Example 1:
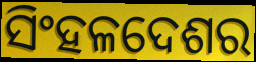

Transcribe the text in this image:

ସିଂହଳଦେଶର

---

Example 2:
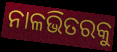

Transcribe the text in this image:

ନାଳଭିତରକୁ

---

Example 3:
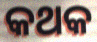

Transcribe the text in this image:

କଥକ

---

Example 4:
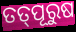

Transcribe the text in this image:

ତତ୍‌ପୂରୁଷ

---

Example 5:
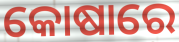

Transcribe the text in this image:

କୋଷାରେ